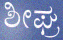
ಶೀಘ್ರ